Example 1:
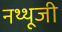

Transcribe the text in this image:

नथ्थूजी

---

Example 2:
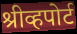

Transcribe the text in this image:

श्रीव्हपोर्ट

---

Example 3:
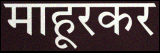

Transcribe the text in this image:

माहूरकर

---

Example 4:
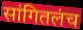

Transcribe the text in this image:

सांगितलंच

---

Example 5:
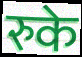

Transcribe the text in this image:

रुके